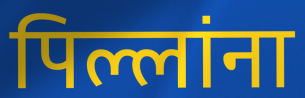
पिल्लांना